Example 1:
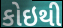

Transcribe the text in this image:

કોઇથી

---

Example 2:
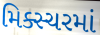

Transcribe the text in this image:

મિક્સ્ચરમાં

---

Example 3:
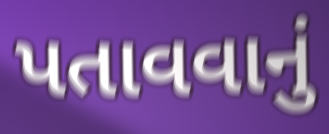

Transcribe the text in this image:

પતાવવાનું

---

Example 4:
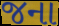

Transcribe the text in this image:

જના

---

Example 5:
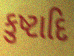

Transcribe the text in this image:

કુષ્ટાદિ